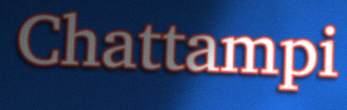
Chattampi